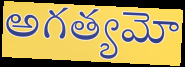
అగత్యమో